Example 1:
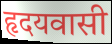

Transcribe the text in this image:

हृदयवासी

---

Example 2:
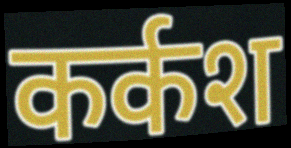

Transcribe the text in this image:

कर्कश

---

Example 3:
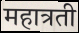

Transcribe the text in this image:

महात्रती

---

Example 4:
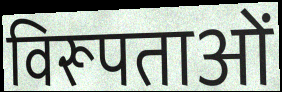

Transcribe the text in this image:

विरूपताओं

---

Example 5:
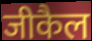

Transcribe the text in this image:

जीकैल